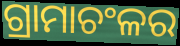
ଗ୍ରାମାଚଂଳର